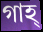
গাহ্